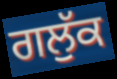
ਗਲੁੱਕ